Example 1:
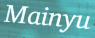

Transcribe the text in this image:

Mainyu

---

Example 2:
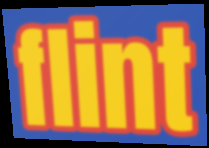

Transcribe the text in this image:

flint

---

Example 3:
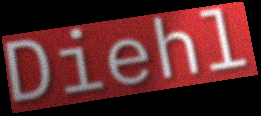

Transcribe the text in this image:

Diehl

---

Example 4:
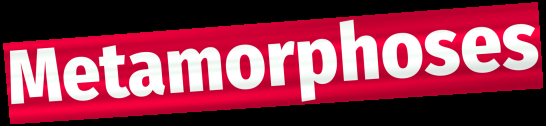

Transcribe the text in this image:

Metamorphoses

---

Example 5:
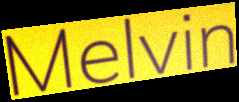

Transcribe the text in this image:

Melvin